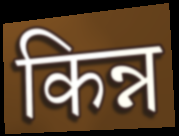
किन्न